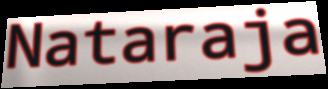
Nataraja